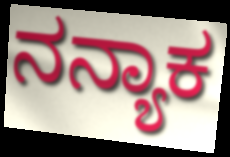
ನನ್ಯಾಕ